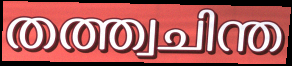
തത്ത്വചിന്ത